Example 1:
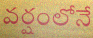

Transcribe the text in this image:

వర్షంలోనే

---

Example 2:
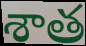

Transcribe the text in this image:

శాత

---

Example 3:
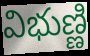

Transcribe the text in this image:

విభుణ్ణి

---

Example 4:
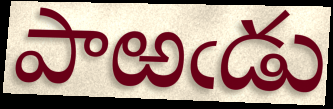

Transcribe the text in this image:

పాఱఁడు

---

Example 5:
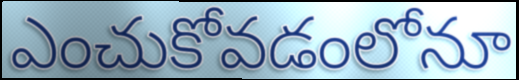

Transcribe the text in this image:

ఎంచుకోవడంలోనూ